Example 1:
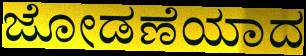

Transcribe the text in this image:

ಜೋಡಣೆಯಾದ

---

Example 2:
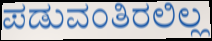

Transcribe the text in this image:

ಪಡುವಂತಿರಲಿಲ್ಲ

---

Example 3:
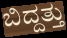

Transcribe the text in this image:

ಬಿದ್ದತ್ತು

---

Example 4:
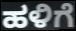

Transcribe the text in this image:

ಹಳಿಗೆ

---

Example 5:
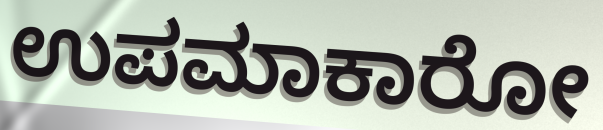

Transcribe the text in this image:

ಉಪಮಾಕಾರೋ